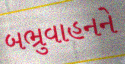
બભ્રુવાહનને